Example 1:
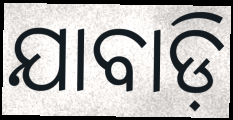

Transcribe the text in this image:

ଯାବାଡ଼ି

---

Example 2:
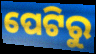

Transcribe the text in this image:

ପେଟିରୁ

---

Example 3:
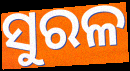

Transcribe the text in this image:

ସୁରଳ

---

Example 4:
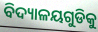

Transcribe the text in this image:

ବିଦ୍ୟାଳୟଗୁଡିକୁ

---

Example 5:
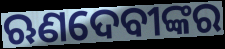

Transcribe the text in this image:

ଋଣଦେବୀଙ୍କର